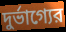
দুর্ভাগ্যের